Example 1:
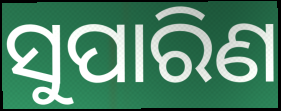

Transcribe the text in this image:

ସୁପାରିଣ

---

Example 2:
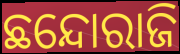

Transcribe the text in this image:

ଛନ୍ଦୋରାଜି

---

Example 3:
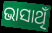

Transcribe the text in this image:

ଭାସାଥିଁ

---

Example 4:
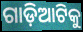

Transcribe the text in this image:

ଗାଡ଼ିଆଟିକୁ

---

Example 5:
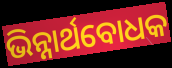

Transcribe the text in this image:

ଭିନ୍ନାର୍ଥବୋଧକ